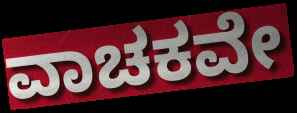
ವಾಚಕವೇ